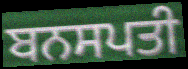
ਬਨਸਪਤੀ